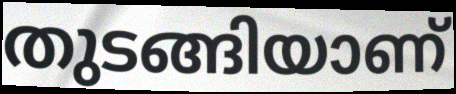
തുടങ്ങിയാണ്